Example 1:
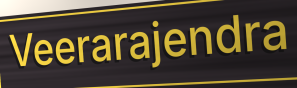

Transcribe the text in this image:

Veerarajendra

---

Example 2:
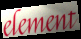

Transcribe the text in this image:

element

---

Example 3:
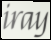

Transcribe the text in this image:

iray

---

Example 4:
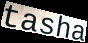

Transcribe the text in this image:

tasha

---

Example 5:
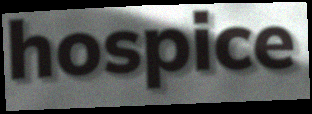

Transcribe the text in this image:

hospice